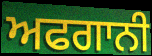
ਅਫਗਾਨੀ